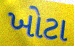
ખોટા